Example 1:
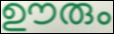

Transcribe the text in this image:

ഊരും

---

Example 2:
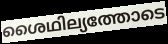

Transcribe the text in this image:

ശൈഥില്യത്തോടെ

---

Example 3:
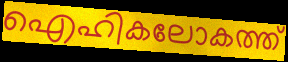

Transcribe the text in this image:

ഐഹികലോകത്ത്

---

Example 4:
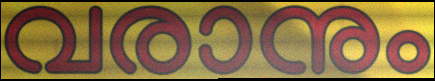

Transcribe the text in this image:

വരാനും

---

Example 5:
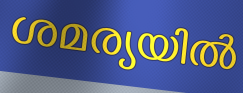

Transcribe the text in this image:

ശമര്യയിൽ